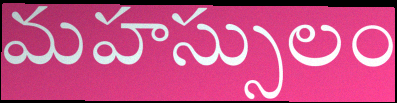
మహస్సులం